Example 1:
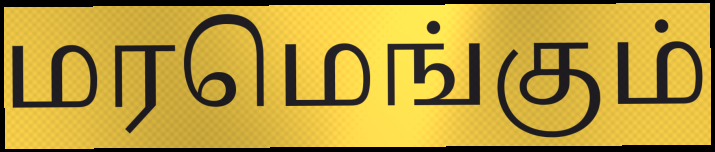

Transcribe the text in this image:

மரமெங்கும்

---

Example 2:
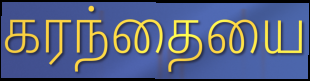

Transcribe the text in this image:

கரந்தையை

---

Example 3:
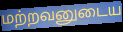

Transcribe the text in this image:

மற்றவனுடைய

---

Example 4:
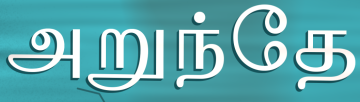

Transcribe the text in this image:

அறுந்தே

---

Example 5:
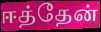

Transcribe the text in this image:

ஈத்தேன்